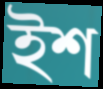
ইশ